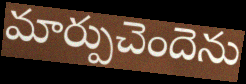
మార్పుచెందెను